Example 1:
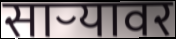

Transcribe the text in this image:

साऱ्यावर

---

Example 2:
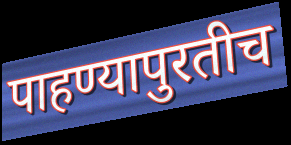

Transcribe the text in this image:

पाहण्यापुरतीच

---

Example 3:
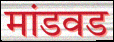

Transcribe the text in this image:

मांडवड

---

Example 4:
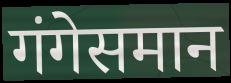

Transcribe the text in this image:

गंगेसमान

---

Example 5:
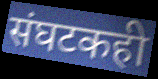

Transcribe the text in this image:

संघटकही